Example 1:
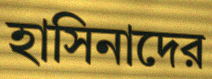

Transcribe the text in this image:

হাসিনাদের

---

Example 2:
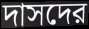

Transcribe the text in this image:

দাসদের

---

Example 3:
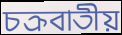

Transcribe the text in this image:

চক্রবাতীয়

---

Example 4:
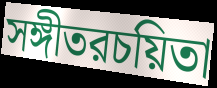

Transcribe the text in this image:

সঙ্গীতরচয়িতা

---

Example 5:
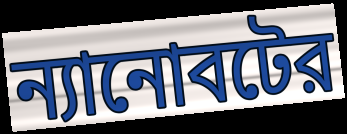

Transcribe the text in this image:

ন্যানোবটের